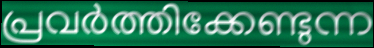
പ്രവർത്തിക്കേണ്ടുന്ന